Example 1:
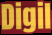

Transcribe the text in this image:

Digil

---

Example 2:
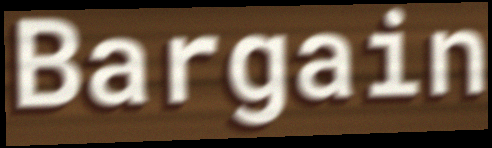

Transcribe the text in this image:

Bargain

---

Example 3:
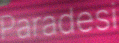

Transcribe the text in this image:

Paradesi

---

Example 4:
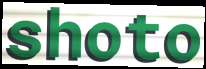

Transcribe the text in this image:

shoto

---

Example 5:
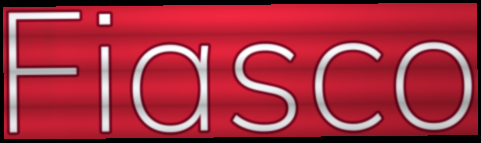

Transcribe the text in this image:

Fiasco